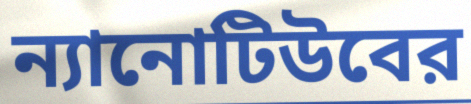
ন্যানোটিউবের